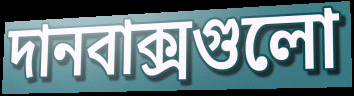
দানবাক্সগুলো